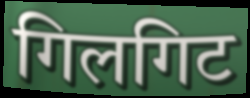
गिलगिट